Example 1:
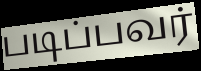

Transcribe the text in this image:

படிப்பவர்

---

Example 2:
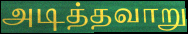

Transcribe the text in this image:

அடித்தவாறு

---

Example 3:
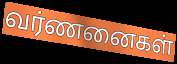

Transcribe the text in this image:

வர்ணனைகள்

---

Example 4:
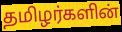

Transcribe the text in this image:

தமிழர்களின்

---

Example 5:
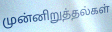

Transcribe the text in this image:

முன்னிறுத்தல்கள்